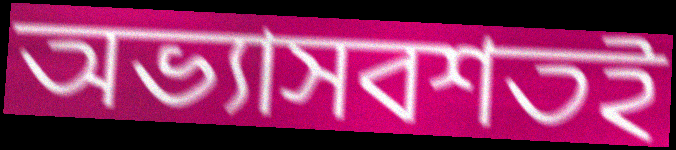
অভ্যাসবশতই